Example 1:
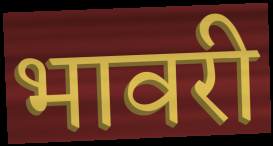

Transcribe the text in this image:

भावरी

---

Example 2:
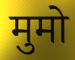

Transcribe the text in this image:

मुमो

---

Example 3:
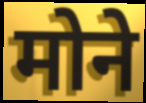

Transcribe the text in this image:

मोने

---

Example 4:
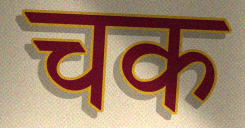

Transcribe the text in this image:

चक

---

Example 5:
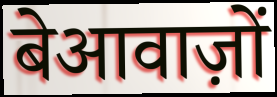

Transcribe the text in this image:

बेआवाज़ों